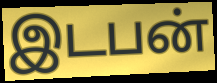
இடபன்